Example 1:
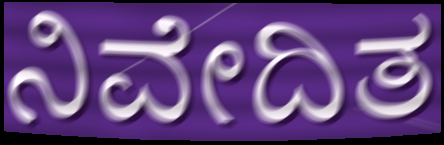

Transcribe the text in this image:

ನಿವೇದಿತ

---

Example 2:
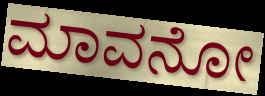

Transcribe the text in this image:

ಮಾವನೋ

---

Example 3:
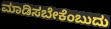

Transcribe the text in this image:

ಮಾಡಿಸಬೇಕೆಂಬುದು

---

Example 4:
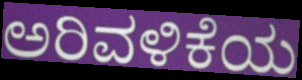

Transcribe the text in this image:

ಅರಿವಳಿಕೆಯ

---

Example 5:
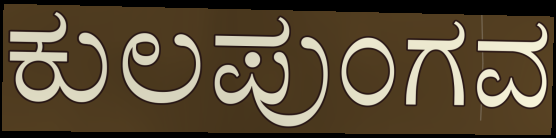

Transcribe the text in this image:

ಕುಲಪುಂಗವ